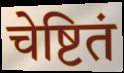
चेष्टितं